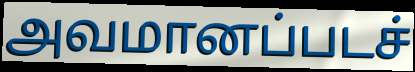
அவமானப்படச்